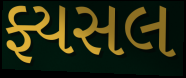
ફ્યસલ